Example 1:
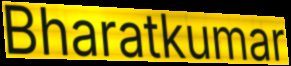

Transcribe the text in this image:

Bharatkumar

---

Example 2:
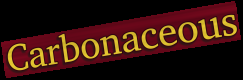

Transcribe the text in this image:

Carbonaceous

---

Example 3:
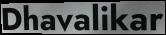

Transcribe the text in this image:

Dhavalikar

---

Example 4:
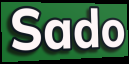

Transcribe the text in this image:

Sado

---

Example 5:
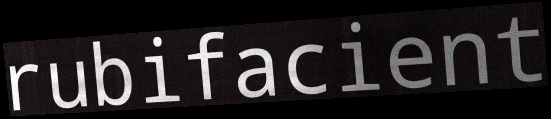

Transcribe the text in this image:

rubifacient